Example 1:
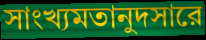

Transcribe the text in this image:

সাংখ্যমতানুদসারে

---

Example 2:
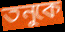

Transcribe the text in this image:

তনুকে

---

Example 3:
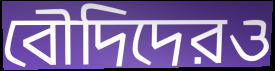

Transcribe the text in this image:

বৌদিদেরও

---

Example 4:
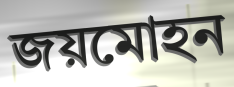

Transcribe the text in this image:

জয়মোহন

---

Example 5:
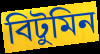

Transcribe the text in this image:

বিটুমিন